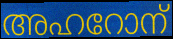
അഹറോന്